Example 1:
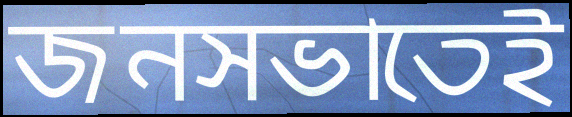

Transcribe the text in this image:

জনসভাতেই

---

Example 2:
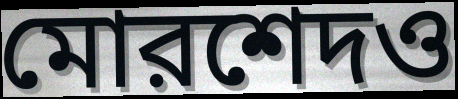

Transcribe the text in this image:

মোরশেদও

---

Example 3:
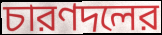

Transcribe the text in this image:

চারণদলের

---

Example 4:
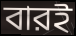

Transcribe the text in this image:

বারই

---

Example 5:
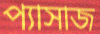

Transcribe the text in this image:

প্যাসাজ